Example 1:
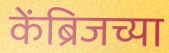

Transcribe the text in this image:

केंब्रिजच्या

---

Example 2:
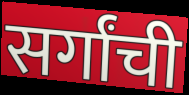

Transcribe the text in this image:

सर्गांची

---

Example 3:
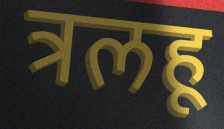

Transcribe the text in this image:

त्रलहू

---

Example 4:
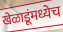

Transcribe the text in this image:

खेळाडूंमध्येच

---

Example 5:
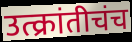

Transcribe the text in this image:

उत्क्रांतीचंच